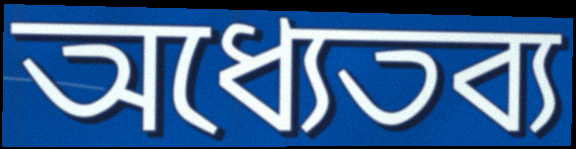
অধ্যেতব্য